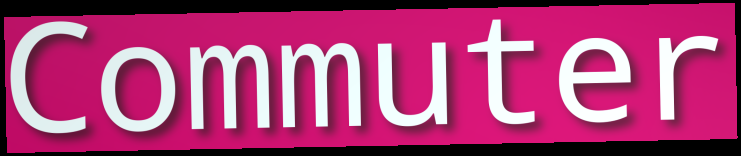
Commuter